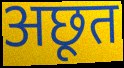
अछूत